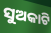
ସୁଅକାଟି